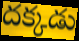
దక్కడు